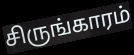
சிருங்காரம்